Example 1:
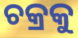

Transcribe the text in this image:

ଚକ୍ରକୁ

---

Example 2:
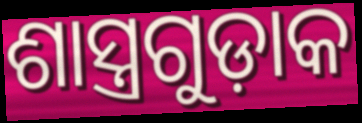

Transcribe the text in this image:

ଶାସ୍ତ୍ରଗୁଡ଼ାକ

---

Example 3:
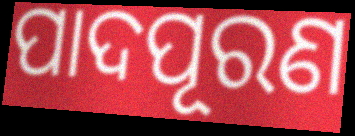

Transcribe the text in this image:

ପାଦପୂରଣ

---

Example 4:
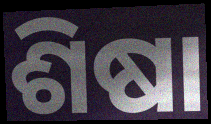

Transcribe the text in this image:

ଶିଷା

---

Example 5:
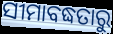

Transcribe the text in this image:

ସୀମାବଦ୍ଧତାରୁ